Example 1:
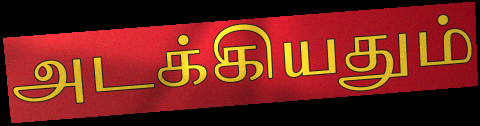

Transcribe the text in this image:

அடக்கியதும்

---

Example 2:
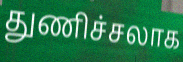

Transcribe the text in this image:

துணிச்சலாக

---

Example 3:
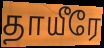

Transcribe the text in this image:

தாயீரே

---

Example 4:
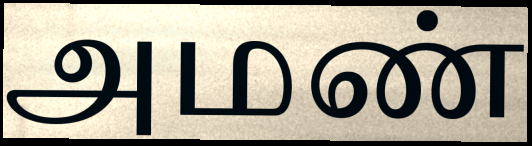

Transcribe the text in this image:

அமண்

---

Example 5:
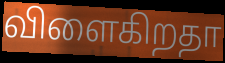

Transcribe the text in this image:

விளைகிறதா